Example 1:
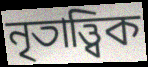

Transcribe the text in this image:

নৃতাত্ত্বিক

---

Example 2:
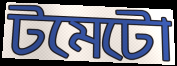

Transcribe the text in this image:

টমেটো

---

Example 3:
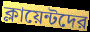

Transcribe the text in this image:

ক্লায়েন্টদের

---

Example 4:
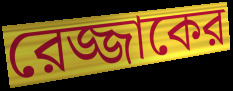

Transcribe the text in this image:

রেজ্জাকের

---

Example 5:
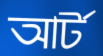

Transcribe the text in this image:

আর্ট